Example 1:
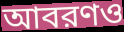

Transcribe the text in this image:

আবরণও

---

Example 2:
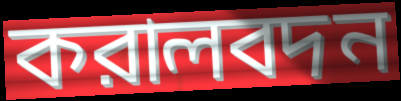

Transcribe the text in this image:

করালবদন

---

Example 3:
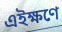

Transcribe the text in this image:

এইক্ষণে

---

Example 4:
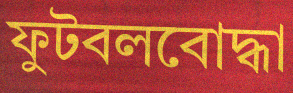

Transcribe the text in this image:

ফুটবলবোদ্ধা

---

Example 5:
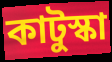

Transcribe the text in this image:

কাটুস্কা